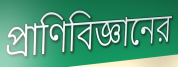
প্রাণিবিজ্ঞানের